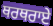
ਥਰਥਰਾਏ